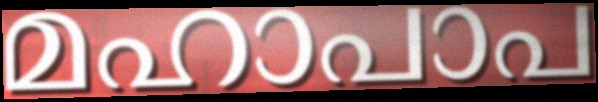
മഹാപാപ